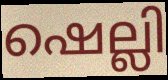
ഷെല്ലി